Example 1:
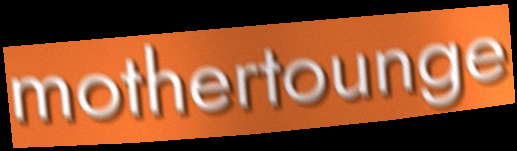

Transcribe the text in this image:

mothertounge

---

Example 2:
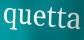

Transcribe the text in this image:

quetta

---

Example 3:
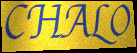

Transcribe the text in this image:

CHALO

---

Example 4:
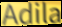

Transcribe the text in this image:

Adila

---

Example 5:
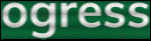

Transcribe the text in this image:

ogress